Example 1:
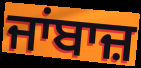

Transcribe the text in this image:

ਜਾਂਬਾਜ਼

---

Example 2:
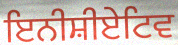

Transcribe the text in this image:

ਇਨੀਸ਼ੀਏਟਿਵ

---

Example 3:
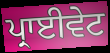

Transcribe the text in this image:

ਪ੍ਰਾਈਵੇਟ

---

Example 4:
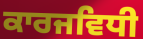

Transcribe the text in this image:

ਕਾਰਜਵਿਧੀ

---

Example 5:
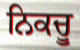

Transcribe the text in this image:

ਨਿਕਚੂ